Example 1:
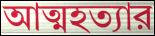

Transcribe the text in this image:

আত্মহত্যার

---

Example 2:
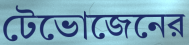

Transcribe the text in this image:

টেভোজেনের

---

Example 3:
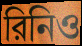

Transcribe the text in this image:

রিনিও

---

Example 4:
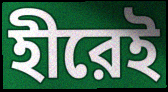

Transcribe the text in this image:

হীরেই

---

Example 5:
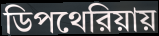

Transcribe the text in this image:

ডিপথেরিয়ায়